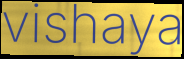
vishaya